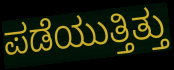
ಪಡೆಯುತ್ತಿತ್ತು